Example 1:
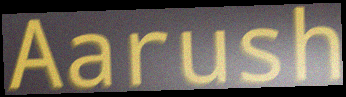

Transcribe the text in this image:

Aarush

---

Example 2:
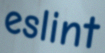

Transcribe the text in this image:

eslint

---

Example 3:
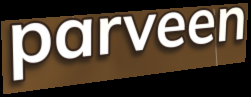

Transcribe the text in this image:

parveen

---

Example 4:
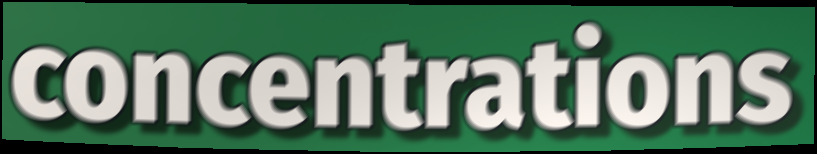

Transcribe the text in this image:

concentrations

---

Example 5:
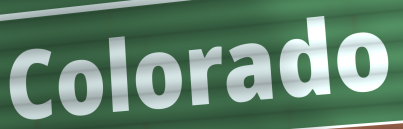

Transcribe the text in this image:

Colorado